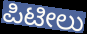
ಪಿಟೀಲು